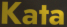
Kata